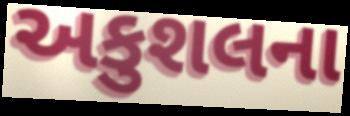
અકુશલના